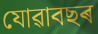
যোৱাবছৰ